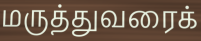
மருத்துவரைக்